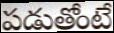
పడుతోంటే